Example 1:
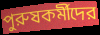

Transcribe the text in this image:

পুরুষকর্মীদের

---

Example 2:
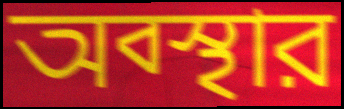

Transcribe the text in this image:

অব্স্থার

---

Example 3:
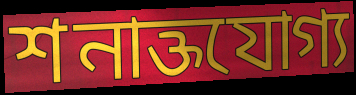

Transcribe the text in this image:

শনাক্তযোগ্য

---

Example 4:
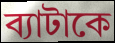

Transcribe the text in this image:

ব্যাটাকে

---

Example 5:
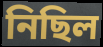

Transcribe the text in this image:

নিছিল